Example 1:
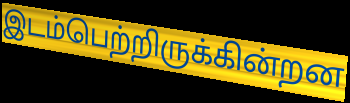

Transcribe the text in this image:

இடம்பெற்றிருக்கின்றன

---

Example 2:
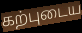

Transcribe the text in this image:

கற்புடைய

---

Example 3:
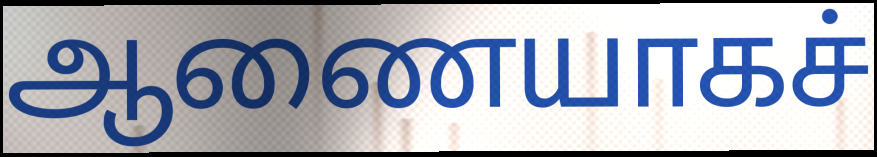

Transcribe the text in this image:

ஆணையாகச்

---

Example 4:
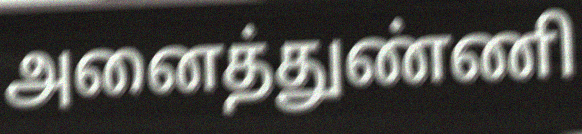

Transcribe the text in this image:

அனைத்துண்ணி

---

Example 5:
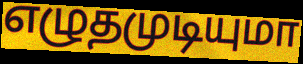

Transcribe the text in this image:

எழுதமுடியுமா